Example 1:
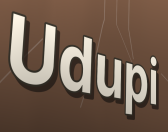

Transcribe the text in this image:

Udupi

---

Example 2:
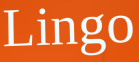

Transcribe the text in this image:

Lingo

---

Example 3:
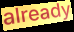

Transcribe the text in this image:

already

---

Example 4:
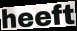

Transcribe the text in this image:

heeft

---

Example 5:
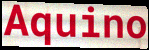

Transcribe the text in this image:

Aquino